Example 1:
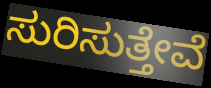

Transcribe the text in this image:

ಸುರಿಸುತ್ತೇವೆ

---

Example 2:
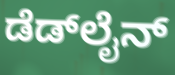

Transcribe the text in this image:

ಡೆಡ್‍ಲೈನ್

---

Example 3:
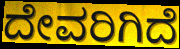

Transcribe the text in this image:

ದೇವರಿಗಿದೆ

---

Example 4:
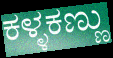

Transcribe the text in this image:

ಕಳ್ಳಕಣ್ಣು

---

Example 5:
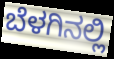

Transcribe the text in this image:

ಬೆಳಗಿನಲ್ಲಿ